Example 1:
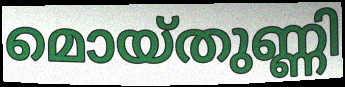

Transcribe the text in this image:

മൊയ്തുണ്ണി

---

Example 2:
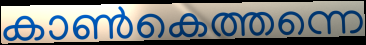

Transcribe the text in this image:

കാൺകെത്തന്നെ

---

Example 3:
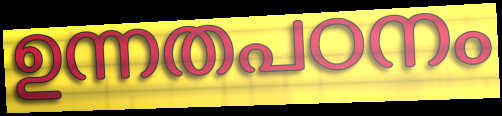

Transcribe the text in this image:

ഉന്നതപഠനം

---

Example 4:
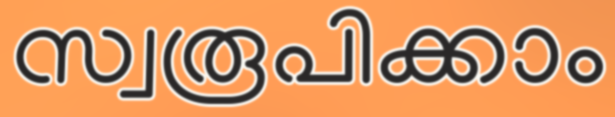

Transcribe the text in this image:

സ്വരൂപിക്കാം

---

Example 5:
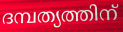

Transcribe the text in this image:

ദമ്പത്യത്തിന്